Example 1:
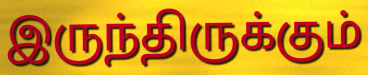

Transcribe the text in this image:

இருந்திருக்கும்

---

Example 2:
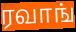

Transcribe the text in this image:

ரவாங்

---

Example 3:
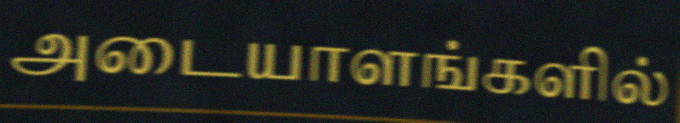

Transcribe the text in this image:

அடையாளங்களில்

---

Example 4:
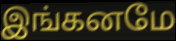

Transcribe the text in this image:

இங்கனமே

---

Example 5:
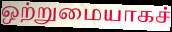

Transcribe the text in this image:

ஒற்றுமையாகச்